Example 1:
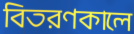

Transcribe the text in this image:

বিতরণকালে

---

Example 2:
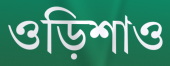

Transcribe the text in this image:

ওড়িশাও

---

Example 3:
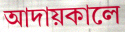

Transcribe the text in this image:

আদায়কালে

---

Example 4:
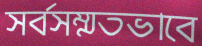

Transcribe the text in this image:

সর্বসম্মতভাবে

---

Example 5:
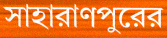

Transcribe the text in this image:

সাহারাণপুরের